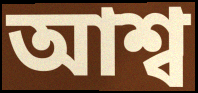
আশ্ব